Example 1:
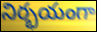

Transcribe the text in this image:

నిర్భయంగా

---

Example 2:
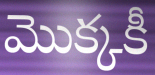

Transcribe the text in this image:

మొక్కకీ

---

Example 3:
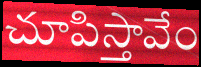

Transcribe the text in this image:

చూపిస్తావేం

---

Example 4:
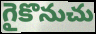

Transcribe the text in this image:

గైకొనుచు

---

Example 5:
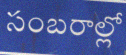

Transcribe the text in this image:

సంబరాల్లో